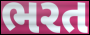
ભરત